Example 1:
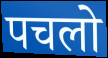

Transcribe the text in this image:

पचलो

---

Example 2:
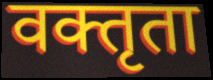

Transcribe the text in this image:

वक्तृता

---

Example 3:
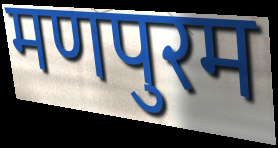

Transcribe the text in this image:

मणपुरम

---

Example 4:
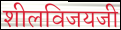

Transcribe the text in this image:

शीलविजयजी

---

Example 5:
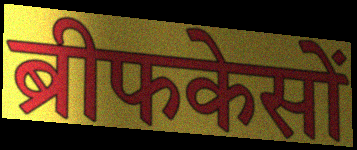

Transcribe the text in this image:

ब्रीफकेसों